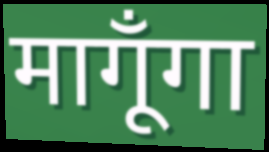
मागूँगा